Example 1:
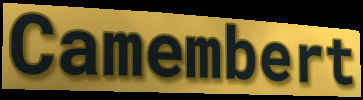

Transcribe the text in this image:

Camembert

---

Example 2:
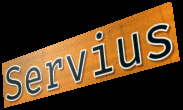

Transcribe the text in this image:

Servius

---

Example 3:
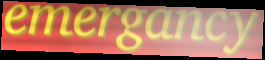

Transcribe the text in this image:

emergancy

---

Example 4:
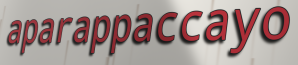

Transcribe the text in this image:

aparappaccayo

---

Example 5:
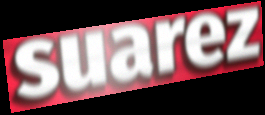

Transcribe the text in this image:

suarez